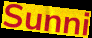
Sunni